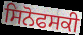
ਸਿਨੋਫਸਕੀ